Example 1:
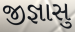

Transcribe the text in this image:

જીજ્ઞાસુ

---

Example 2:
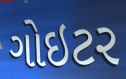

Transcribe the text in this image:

ગોઇટર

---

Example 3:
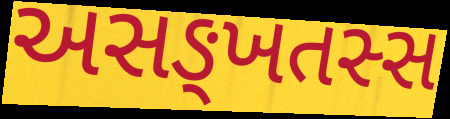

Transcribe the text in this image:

અસઙ્ખતસ્સ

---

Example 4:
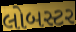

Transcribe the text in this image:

લોબસ્ટર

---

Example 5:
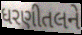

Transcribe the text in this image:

ધરણીતલને